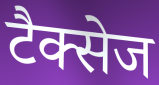
टैक्सेज